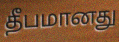
தீபமானது